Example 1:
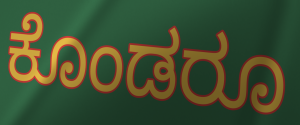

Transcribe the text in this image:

ಕೊಂಡರೂ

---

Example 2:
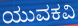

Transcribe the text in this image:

ಯುವಕವಿ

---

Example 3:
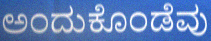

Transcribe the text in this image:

ಅಂದುಕೊಂಡೆವು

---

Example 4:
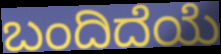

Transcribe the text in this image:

ಬಂದಿದೆಯೆ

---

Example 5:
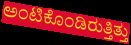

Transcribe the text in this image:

ಅಂಟಿಕೊಂಡಿರುತ್ತಿತ್ತು